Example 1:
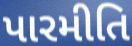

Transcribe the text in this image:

પારમીતિ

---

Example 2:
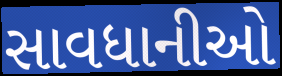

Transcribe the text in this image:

સાવધાનીઓ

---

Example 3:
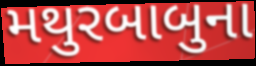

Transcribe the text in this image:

મથુરબાબુના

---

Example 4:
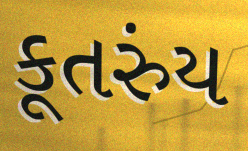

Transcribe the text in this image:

કૂતરુંય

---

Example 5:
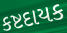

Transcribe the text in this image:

કષ્ટદાયક